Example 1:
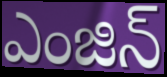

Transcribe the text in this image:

ఎంజిన్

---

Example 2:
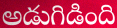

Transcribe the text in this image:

అడుగిడింది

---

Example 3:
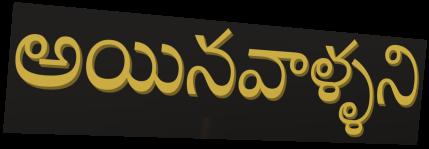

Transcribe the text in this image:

అయినవాళ్ళని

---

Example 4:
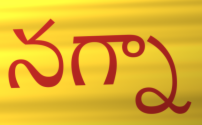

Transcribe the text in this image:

నగ్నా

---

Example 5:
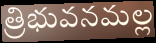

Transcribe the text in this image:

త్రిభువనమల్ల